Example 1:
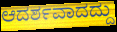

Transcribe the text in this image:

ಆದರ್ಶವಾದದ್ದು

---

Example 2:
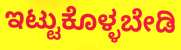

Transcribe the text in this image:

ಇಟ್ಟುಕೊಳ್ಳಬೇಡಿ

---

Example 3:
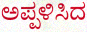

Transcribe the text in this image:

ಅಪ್ಪಳಿಸಿದ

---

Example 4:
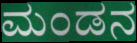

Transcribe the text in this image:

ಮಂಡನ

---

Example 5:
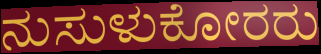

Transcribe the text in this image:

ನುಸುಳುಕೋರರು